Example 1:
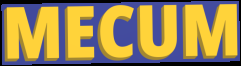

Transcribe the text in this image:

MECUM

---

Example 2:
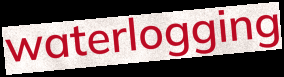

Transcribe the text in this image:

waterlogging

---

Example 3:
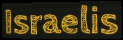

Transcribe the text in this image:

Israelis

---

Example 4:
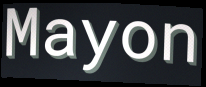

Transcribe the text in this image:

Mayon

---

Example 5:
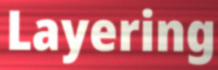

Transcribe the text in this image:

Layering